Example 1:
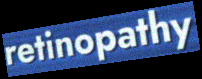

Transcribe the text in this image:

retinopathy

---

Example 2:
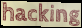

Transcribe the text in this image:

hacking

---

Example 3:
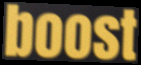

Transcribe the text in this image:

boost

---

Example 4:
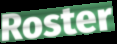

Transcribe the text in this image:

Roster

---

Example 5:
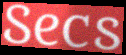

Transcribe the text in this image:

Secs